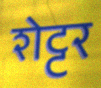
शेट्टर